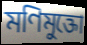
মণিমুক্তো